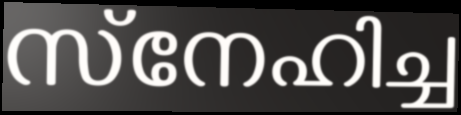
സ്‌നേഹിച്ച